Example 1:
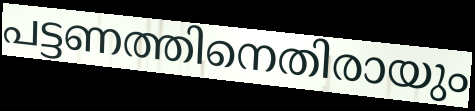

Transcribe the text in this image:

പട്ടണത്തിനെതിരായും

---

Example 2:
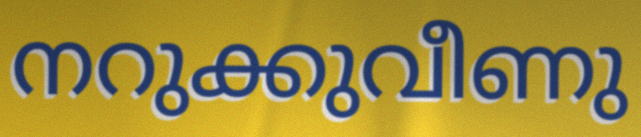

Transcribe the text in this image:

നറുക്കുവീണു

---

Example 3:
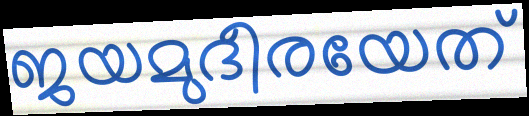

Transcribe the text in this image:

ജയമുദീരയേത്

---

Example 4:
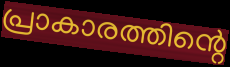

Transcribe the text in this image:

പ്രാകാരത്തിന്റെ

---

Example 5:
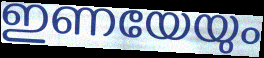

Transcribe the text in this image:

ഇണയേയും